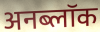
अनब्लॉक